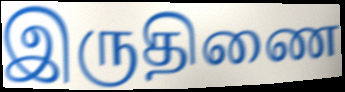
இருதிணை